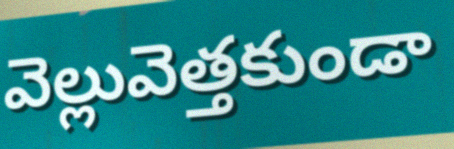
వెల్లువెత్తకుండా